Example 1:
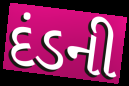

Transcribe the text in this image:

દંડની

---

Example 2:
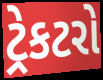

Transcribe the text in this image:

ટ્રેકટરો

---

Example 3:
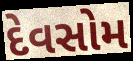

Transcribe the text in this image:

દેવસોમ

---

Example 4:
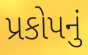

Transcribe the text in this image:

પ્રકોપનું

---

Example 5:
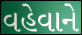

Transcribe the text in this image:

વહેવાને